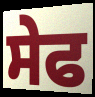
ਸੇਫ